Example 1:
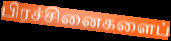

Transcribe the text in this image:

பிரச்சினைகளைப்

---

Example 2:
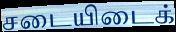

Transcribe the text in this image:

சடையிடைக்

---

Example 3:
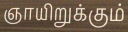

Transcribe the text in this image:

ஞாயிறுக்கும்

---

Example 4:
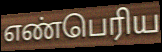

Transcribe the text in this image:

எண்பெரிய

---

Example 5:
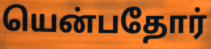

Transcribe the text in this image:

யென்பதோர்